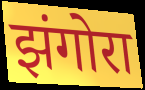
झंगोरा